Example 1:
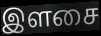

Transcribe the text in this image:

இளசை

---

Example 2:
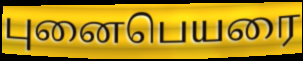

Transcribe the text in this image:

புனைபெயரை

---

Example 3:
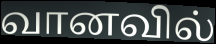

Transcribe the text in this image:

வானவில்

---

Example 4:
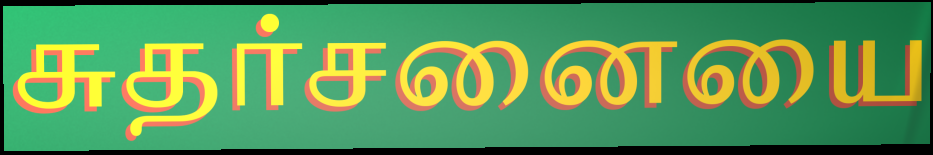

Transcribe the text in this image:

சுதர்சனையை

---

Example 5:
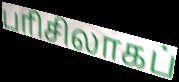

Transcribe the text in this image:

பரிசிலாகப்